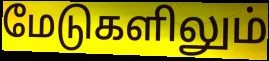
மேடுகளிலும்